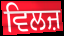
ਵਿਲਜ਼